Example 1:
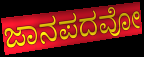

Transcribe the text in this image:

ಜಾನಪದವೋ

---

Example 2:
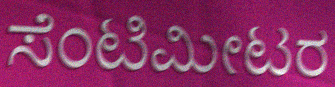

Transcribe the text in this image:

ಸೆಂಟಿಮೀಟರ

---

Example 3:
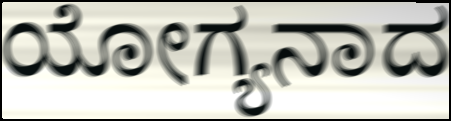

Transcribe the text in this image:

ಯೋಗ್ಯನಾದ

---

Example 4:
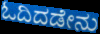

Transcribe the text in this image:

ಓದಿದಡೇನು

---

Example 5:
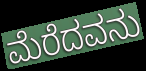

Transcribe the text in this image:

ಮೆರೆದವನು